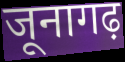
जूनागढ़